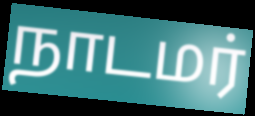
நாடமர்